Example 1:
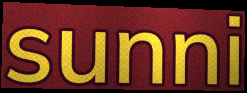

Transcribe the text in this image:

sunni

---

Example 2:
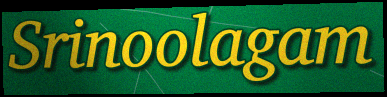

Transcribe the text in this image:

Srinoolagam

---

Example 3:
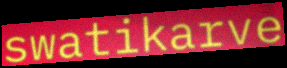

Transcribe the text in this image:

swatikarve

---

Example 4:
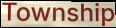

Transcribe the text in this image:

Township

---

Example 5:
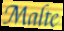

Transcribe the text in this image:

Malte